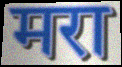
मरा